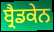
ਬ੍ਰੈਡਕੇਨ